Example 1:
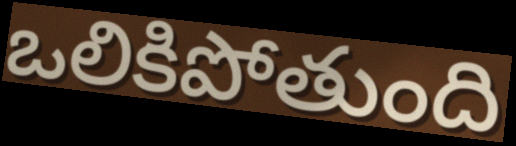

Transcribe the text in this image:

ఒలికిపోతుంది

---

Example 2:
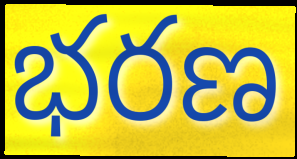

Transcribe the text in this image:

భరణ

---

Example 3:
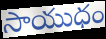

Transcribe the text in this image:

సాయుధం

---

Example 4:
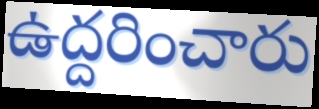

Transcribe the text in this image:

ఉద్దరించారు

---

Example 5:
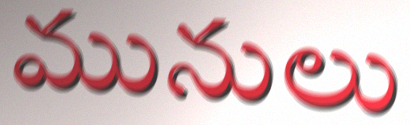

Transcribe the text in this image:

మునులు